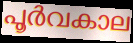
പൂർവകാല